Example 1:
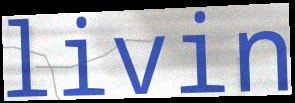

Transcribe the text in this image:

livin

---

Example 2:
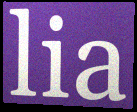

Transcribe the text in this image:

lia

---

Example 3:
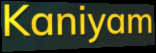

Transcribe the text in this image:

Kaniyam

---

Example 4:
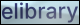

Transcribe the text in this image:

elibrary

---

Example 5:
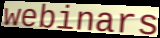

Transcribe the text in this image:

webinars